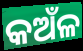
କଅଁଳ